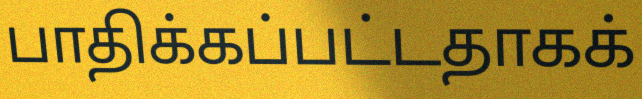
பாதிக்கப்பட்டதாகக்